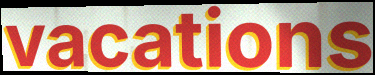
vacations